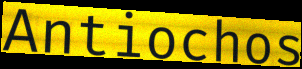
Antiochos